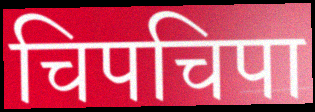
चिपचिपा